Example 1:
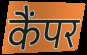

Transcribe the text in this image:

कैंपर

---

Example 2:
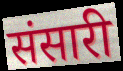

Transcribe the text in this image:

संसारी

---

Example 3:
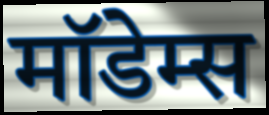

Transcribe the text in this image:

मॉडेम्स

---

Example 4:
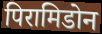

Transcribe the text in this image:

पिरामिडोन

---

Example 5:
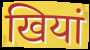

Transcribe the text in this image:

खियां